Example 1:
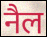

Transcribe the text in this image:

नैल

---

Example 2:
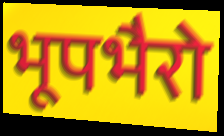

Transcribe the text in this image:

भूपभैरो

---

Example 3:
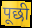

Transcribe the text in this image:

पूछी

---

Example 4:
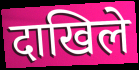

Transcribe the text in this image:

दाखिले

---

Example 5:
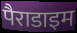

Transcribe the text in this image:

पैराडाइम